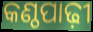
କଣ୍ଠପାଢ଼ୀ